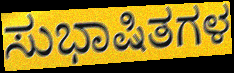
ಸುಭಾಷಿತಗಳ